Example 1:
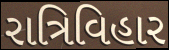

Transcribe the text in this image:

રાત્રિવિહાર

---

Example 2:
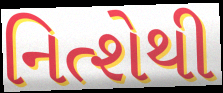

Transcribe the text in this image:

નિત્શેથી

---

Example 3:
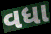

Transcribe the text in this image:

વધા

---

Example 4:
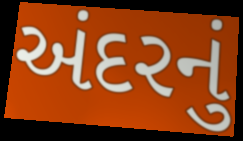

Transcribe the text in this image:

અંદરનું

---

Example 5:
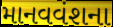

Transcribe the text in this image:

માનવવંશના